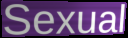
Sexual